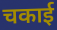
चकाई